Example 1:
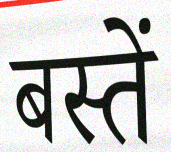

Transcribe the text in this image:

बस्तें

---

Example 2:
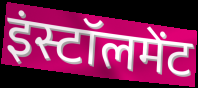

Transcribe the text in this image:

इंस्टॉलमेंट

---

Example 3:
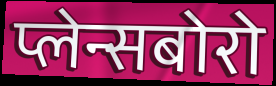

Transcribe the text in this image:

प्लेन्सबोरो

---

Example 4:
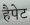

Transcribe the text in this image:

हैपेट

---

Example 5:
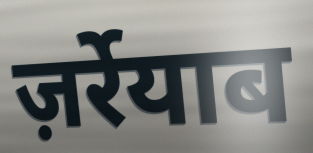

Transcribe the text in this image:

ज़र्रेयाब